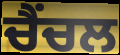
ਚੈਂਚਲ